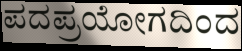
ಪದಪ್ರಯೋಗದಿಂದ